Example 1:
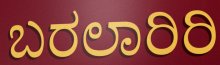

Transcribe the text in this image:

ಬರಲಾರಿರಿ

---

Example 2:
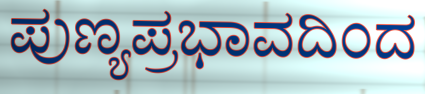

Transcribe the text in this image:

ಪುಣ್ಯಪ್ರಭಾವದಿಂದ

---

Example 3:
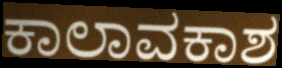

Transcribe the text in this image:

ಕಾಲಾವಕಾಶ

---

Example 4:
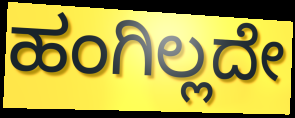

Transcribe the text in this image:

ಹಂಗಿಲ್ಲದೇ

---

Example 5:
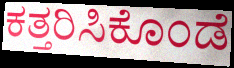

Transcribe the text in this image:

ಕತ್ತರಿಸಿಕೊಂಡೆ